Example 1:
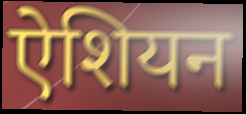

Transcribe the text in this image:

ऐशियन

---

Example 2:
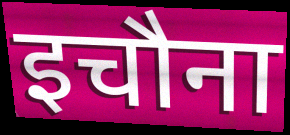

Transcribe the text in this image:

इचौना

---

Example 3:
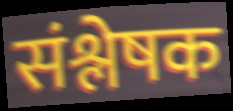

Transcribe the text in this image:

संश्लेषक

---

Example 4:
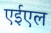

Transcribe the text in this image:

एईएल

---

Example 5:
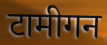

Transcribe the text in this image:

टामीगन